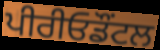
ਪੀਰੀਓਡੌਂਟਲ